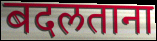
बदलताना